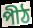
পীঠ